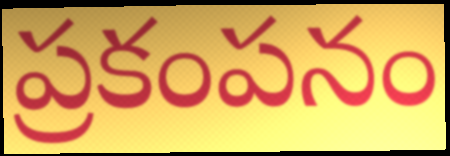
ప్రకంపనం